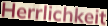
Herrlichkeit